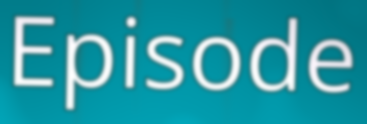
Episode